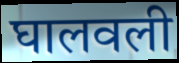
घालवली